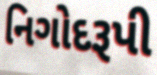
નિગોદરૂપી